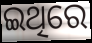
ଇଥିରେ